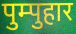
पुम्पुहार